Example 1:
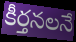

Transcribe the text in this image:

కీర్తనలనే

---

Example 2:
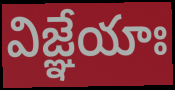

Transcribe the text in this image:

విజ్ఞేయాః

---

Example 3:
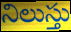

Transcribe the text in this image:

నిలుస్తు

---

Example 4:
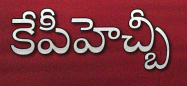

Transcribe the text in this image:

కేపీహెచ్బీ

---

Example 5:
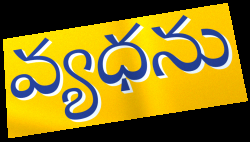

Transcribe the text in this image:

వ్యధను